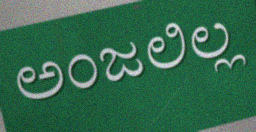
ಅಂಜಲಿಲ್ಲ